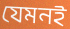
যেমনই